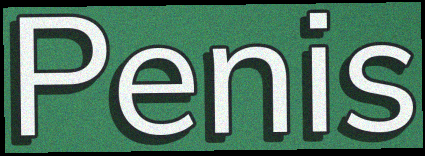
Penis